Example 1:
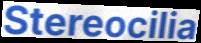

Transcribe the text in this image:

Stereocilia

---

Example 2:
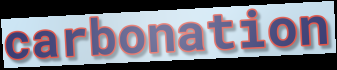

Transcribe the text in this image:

carbonation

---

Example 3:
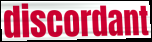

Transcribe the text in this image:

discordant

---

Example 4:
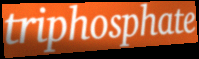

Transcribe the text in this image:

triphosphate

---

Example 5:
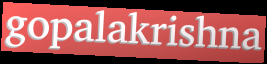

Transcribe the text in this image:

gopalakrishna